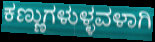
ಕಣ್ಣುಗಳುಳ್ಳವಳಾಗಿ